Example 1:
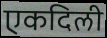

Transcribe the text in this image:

एकदिली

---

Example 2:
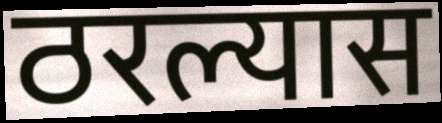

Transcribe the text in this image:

ठरल्यास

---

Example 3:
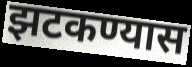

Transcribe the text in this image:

झटकण्यास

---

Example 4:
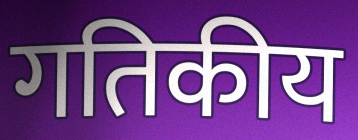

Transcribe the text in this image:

गतिकीय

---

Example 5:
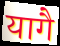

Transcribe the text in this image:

यागै